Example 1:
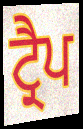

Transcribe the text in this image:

ਟ੍ਰੈਪ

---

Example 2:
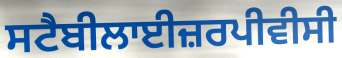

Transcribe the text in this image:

ਸਟੈਬੀਲਾਈਜ਼ਰਪੀਵੀਸੀ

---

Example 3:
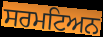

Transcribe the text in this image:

ਸਰਮਟਿਅਨ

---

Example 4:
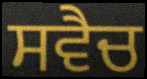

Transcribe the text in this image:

ਸਵੈਚ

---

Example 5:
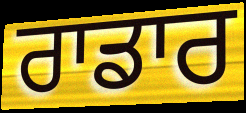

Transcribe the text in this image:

ਰਾਡਾਰ